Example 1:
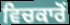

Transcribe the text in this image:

ਵਿਚਕਾਰੋਂ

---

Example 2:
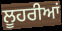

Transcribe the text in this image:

ਲੂਹਰੀਆਂ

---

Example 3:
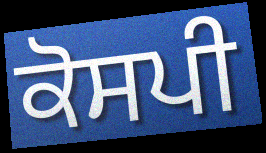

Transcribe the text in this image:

ਕੋਸਪੀ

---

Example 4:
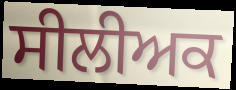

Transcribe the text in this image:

ਸੀਲੀਅਕ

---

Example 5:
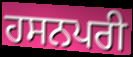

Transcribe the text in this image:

ਹਸਨਪਰੀ